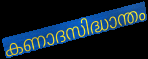
കണാദസിദ്ധാന്തം